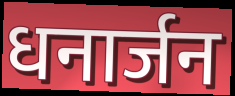
धनार्जन